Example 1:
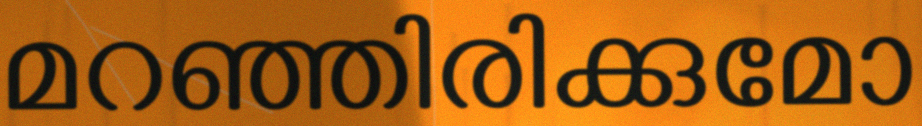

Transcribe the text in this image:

മറഞ്ഞിരിക്കുമോ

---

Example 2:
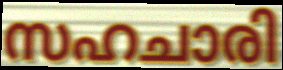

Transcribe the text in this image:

സഹചാരി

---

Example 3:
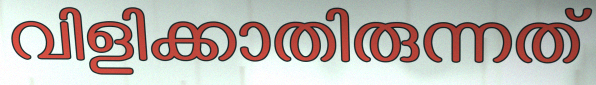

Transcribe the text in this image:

വിളിക്കാതിരുന്നത്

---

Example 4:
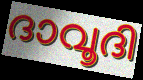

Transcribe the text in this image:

ദാവൂദി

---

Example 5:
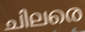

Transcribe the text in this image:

ചിലരെ